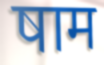
षाम